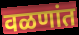
वळणांत